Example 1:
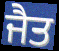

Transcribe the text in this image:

ਜੈਤ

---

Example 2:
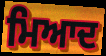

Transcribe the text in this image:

ਮਿਆਦ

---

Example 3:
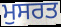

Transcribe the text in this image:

ਮੁਸਰਤ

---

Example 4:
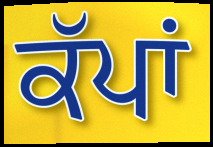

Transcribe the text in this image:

ਕੱਪਾਂ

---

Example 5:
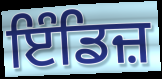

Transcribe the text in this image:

ਇੰਡਿਜ਼